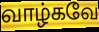
வாழ்கவே